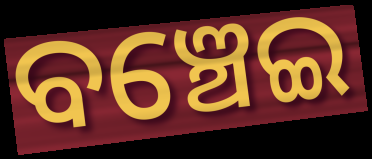
ବଞ୍ଚେଇ